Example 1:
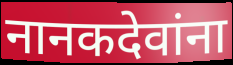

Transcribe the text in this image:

नानकदेवांना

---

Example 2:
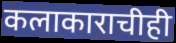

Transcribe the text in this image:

कलाकाराचीही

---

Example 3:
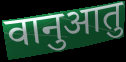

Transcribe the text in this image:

वानुआतु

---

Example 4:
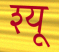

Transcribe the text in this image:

श्यू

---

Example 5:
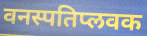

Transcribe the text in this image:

वनस्पतिप्लवक